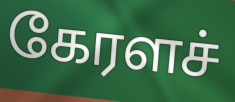
கேரளச்